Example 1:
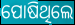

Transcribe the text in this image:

ପୋଷିଥିଲେ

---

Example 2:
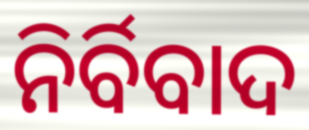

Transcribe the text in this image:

ନିର୍ବିବାଦ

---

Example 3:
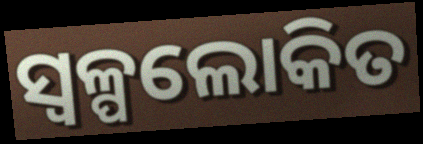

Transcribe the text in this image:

ସ୍ୱଳ୍ପଲୋକିତ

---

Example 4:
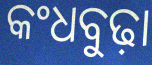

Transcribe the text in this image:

କଂଧବୁଢ଼ା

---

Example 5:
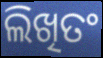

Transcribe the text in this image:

ଲିଖିତଂ